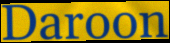
Daroon